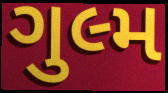
ગુલ્મ